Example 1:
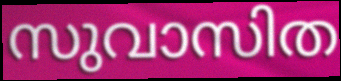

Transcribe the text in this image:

സുവാസിത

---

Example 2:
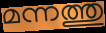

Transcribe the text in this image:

മന്നത്തു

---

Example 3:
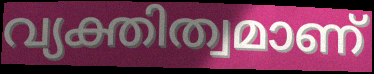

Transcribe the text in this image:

വ്യക്തിത്വമാണ്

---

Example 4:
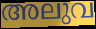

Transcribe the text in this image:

അലുവ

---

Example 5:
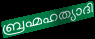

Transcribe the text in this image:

ബ്രഹ്മഹത്യാദി